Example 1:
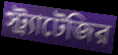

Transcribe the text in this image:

স্ট্র্যাটেজির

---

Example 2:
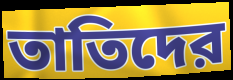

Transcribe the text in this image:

তাতিদের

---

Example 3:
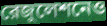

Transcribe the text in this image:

রেজুলেশনেও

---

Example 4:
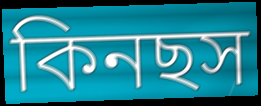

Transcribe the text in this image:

কিনছস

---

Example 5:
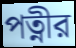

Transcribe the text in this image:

পত্নীর